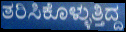
ತರಿಸಿಕೊಳ್ಳುತ್ತಿದ್ದ